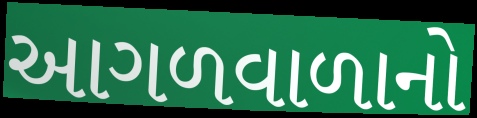
આગળવાળાનો